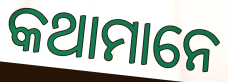
କଥାମାନେ